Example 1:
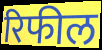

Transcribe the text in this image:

रिफील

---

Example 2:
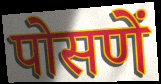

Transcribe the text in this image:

पोसणें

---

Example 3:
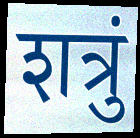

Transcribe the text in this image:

शत्रुं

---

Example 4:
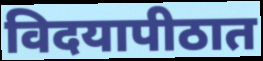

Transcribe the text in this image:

विदयापीठात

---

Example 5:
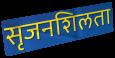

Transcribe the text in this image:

सृजनशिलता